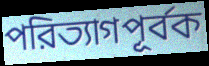
পরিত্যাগপূর্বক